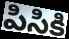
పిసికి